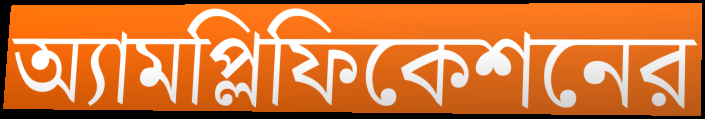
অ্যামপ্লিফিকেশনের